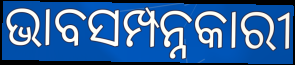
ଭାବସମ୍ପନ୍ନକାରୀ